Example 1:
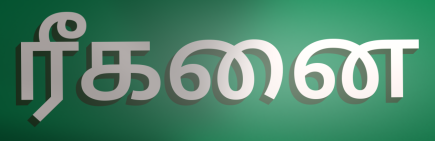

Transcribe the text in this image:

ரீகனை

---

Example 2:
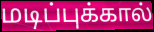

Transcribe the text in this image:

மடிப்புக்கால்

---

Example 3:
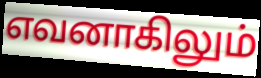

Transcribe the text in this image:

எவனாகிலும்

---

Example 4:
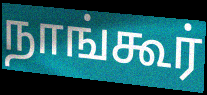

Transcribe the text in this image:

நாங்கூர்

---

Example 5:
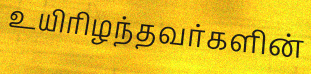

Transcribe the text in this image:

உயிரிழந்தவர்களின்